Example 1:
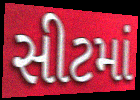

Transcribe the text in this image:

સીટમાં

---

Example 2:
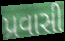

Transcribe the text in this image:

પ્રવાસી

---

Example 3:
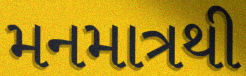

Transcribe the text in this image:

મનમાત્રથી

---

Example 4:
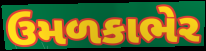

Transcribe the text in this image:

ઉમળકાભેર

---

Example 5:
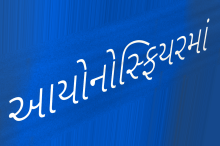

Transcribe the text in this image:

આયોનોસ્ફિયરમાં